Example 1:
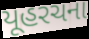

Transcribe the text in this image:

યૂહરચના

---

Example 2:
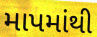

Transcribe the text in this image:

માપમાંથી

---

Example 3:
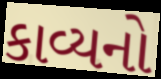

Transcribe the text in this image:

કાવ્યનો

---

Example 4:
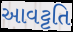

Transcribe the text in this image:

આવટ્ટતિ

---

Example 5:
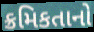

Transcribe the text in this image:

ક્રમિકતાનો